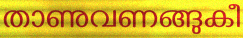
താണുവണങ്ങുകീ